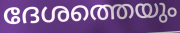
ദേശത്തെയും